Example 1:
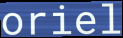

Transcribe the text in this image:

oriel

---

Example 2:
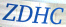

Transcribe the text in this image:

ZDHC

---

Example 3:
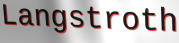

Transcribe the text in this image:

Langstroth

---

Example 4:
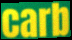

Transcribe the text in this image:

carb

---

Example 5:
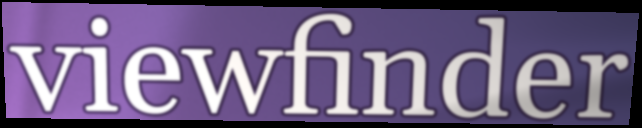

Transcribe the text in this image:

viewfinder